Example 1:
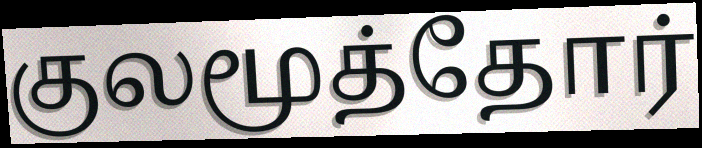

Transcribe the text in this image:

குலமூத்தோர்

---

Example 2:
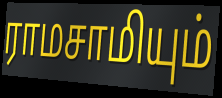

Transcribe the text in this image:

ராமசாமியும்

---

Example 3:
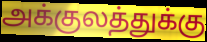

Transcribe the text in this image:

அக்குலத்துக்கு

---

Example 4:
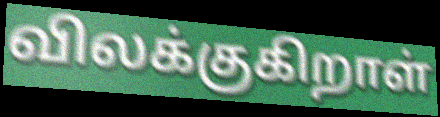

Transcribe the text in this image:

விலக்குகிறாள்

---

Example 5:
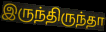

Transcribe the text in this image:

இருந்திருந்தா